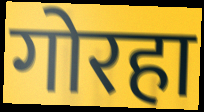
गोरहा